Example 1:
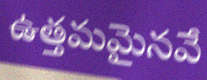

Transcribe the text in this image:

ఉత్తమమైనవే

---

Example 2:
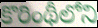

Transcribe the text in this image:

కొరింథీలోని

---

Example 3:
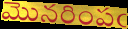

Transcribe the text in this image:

మొనరింపఁ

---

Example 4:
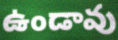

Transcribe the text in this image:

ఉండావు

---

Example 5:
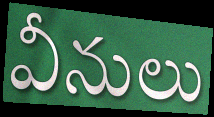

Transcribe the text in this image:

వీనులు